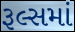
રૂલ્સમાં